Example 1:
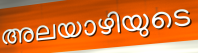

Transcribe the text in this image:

അലയാഴിയുടെ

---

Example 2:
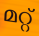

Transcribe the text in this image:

മറ്റ്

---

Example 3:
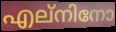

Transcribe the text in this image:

എല്നിനോ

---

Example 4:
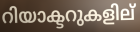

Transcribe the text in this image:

റിയാക്ടറുകളില്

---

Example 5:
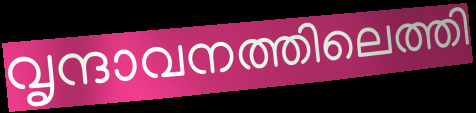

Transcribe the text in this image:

വൃന്ദാവനത്തിലെത്തി